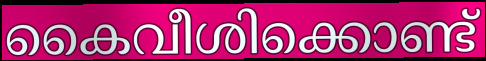
കൈവീശിക്കൊണ്ട്